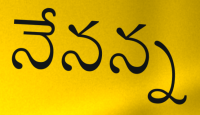
నేనన్న